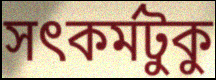
সৎকর্মটুকু